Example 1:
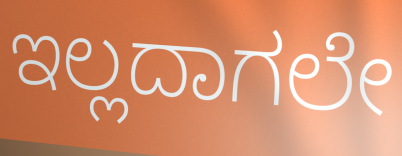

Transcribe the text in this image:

ಇಲ್ಲದಾಗಲೇ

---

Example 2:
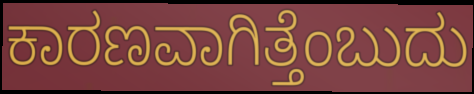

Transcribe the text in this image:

ಕಾರಣವಾಗಿತ್ತೆಂಬುದು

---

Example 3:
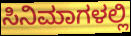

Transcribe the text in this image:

ಸಿನಿಮಾಗಳಲ್ಲಿ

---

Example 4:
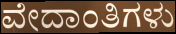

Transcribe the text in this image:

ವೇದಾಂತಿಗಳು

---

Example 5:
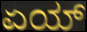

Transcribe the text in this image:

ಏಯ್